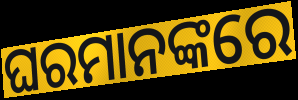
ଘରମାନଙ୍କରେ